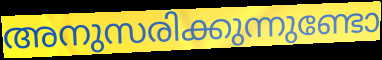
അനുസരിക്കുന്നുണ്ടോ